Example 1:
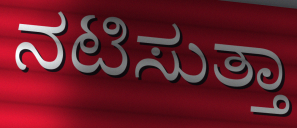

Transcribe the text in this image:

ನಟಿಸುತ್ತಾ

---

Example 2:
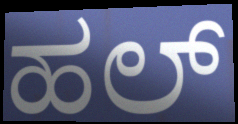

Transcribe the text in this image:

ಹಲ್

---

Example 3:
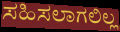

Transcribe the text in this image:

ಸಹಿಸಲಾಗಲಿಲ್ಲ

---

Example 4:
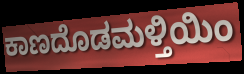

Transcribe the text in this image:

ಕಾಣದೊಡಮಳ್ತಿಯಿಂ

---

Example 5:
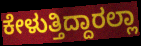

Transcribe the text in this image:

ಕೇಳುತ್ತಿದ್ದಾರಲ್ಲಾ